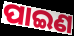
ପାଇଣ